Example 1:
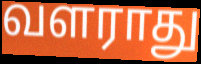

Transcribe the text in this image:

வளராது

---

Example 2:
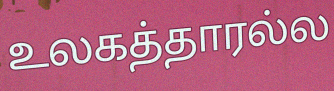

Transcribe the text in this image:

உலகத்தாரல்ல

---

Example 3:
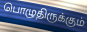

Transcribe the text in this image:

பொழுதிருக்கும்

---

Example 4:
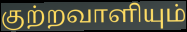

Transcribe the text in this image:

குற்றவாளியும்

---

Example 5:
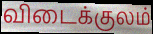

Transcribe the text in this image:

விடைக்குலம்